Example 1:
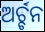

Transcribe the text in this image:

ଅର୍ଚ୍ଚନ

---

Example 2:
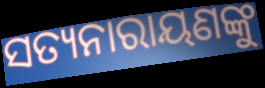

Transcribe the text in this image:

ସତ୍ୟନାରାୟଣଙ୍କୁ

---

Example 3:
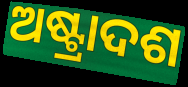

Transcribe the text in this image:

ଅଷ୍ଟ୍ରାଦଶ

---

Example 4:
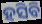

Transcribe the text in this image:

ହସିବି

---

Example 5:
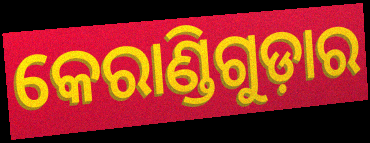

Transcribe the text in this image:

କେରାଣ୍ଡିଗୁଡ଼ାର